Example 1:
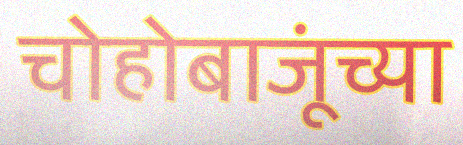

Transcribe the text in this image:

चोहोबाजूंच्या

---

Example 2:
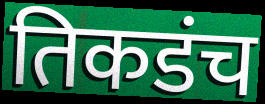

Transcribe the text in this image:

तिकडंच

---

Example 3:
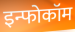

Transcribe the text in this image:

इन्फोकॉम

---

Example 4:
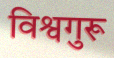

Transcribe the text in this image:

विश्वगुरू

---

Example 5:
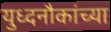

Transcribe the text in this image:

युध्दनौकांच्या